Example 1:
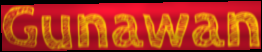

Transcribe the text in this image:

Gunawan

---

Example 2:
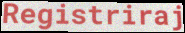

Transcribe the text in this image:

Registriraj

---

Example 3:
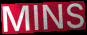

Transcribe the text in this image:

MINS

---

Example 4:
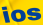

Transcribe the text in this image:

ios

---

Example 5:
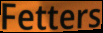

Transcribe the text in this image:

Fetters